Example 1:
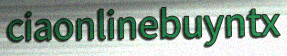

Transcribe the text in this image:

ciaonlinebuyntx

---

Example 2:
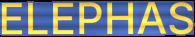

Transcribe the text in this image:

ELEPHAS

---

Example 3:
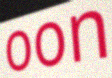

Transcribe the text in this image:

oon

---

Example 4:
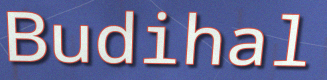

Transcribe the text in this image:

Budihal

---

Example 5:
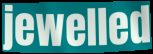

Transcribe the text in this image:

jewelled